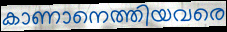
കാണാനെത്തിയവരെ